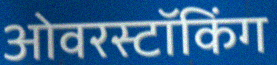
ओवरस्टॉकिंग